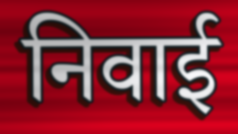
निवाई